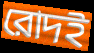
রোদই